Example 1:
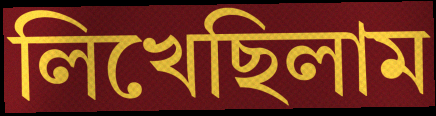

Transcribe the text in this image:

লিখেছিলাম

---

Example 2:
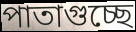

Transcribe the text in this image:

পাতাগুচ্ছে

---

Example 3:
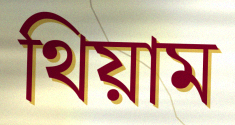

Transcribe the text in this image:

থিয়াম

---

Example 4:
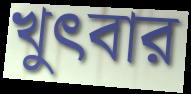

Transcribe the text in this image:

খুৎবার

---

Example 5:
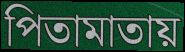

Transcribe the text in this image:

পিতামাতায়